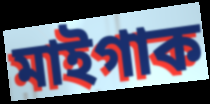
মাইগাক